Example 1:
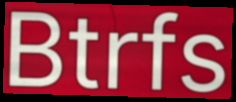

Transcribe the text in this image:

Btrfs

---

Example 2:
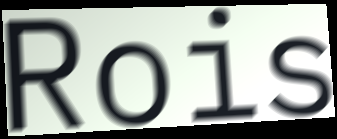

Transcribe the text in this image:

Rois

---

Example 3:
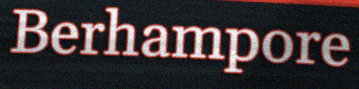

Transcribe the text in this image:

Berhampore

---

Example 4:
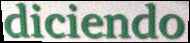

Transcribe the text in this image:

diciendo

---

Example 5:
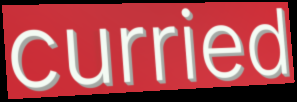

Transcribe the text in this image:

curried